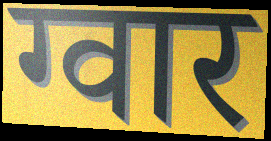
ग्वार